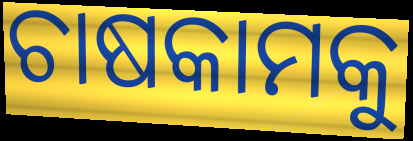
ଚାଷକାମକୁ